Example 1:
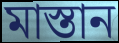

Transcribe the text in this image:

মাস্তান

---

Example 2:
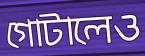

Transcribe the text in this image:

গোটালেও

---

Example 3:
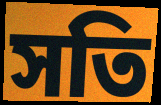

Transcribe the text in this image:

সতি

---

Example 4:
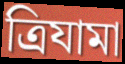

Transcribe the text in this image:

ত্রিযামা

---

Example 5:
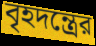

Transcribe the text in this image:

বৃহদন্ত্রের